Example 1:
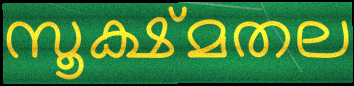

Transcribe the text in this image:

സൂക്ഷ്മതല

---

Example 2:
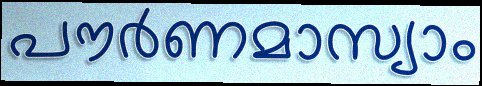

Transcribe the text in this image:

പൗർണമാസ്യാം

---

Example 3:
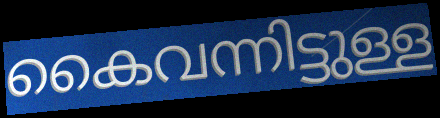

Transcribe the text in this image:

കൈവന്നിട്ടുള്ള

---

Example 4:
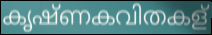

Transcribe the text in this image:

കൃഷ്ണകവിതകള്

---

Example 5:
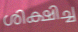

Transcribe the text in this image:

ശിക്ഷിച്ച